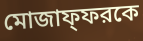
মোজাফ্ফরকে